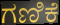
ಗಣಿಕೆ